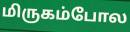
மிருகம்போல